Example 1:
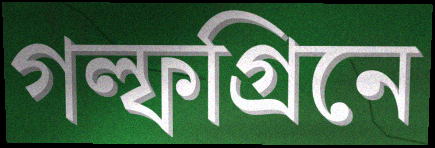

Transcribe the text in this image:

গল্ফগ্রিনে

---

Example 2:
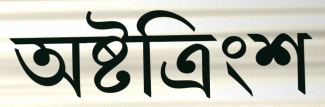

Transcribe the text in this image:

অষ্টত্রিংশ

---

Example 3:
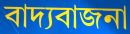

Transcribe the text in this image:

বাদ্যবাজনা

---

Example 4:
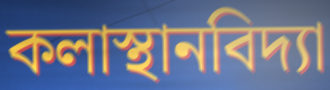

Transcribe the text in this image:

কলাস্থানবিদ্যা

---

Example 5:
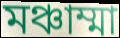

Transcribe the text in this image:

মঞ্চাম্মা